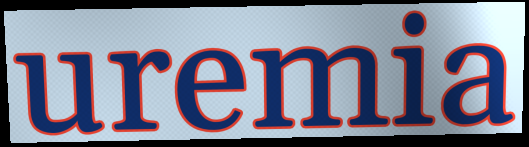
uremia